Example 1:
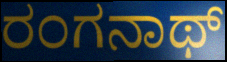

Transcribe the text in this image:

ರಂಗನಾಥ್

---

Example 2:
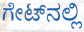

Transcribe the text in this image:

ಗೇಟ್‌ನಲ್ಲಿ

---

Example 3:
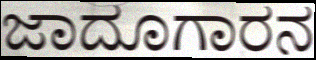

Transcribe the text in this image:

ಜಾದೂಗಾರನ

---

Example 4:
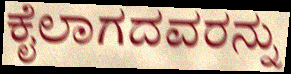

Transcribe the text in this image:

ಕೈಲಾಗದವರನ್ನು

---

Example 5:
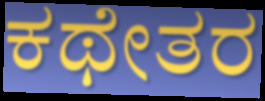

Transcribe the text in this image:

ಕಥೇತರ